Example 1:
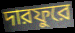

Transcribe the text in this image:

দারফুরে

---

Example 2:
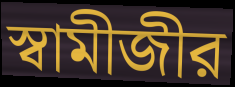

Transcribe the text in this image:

স্বামীজীর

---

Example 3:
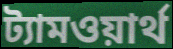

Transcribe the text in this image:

ট্যামওয়ার্থ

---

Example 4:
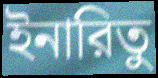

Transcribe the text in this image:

ইনারিতু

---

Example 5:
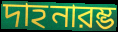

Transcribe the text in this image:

দাহনারম্ভ